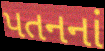
પતનનાં